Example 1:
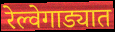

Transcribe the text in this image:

रेल्वेगाड्यात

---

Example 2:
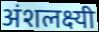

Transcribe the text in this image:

अंशलक्ष्यी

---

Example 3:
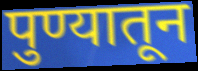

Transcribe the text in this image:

पुण्यातून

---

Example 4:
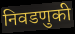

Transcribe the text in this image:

निवडणुकी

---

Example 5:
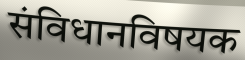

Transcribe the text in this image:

संविधानविषयक